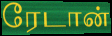
ரேடான்